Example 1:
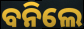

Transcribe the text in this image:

ବନିଲେ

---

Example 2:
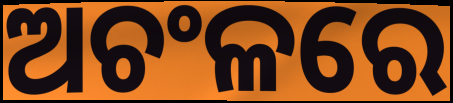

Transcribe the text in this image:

ଅଚଂଳରେ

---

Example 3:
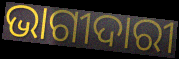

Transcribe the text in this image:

ଭାଗୀଦାରୀ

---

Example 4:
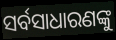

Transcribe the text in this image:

ସର୍ବସାଧାରଣଙ୍କୁ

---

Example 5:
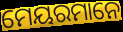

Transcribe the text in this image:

ମେୟରମାନେ